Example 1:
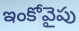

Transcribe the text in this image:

ఇంకోవైపు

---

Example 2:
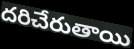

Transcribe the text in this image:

దరిచేరుతాయి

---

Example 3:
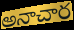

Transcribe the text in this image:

అనాచార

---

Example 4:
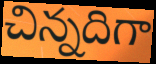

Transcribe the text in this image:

చిన్నదిగా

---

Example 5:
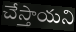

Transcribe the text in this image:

చేస్తాయని